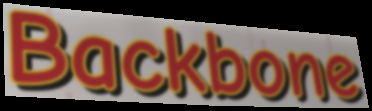
Backbone